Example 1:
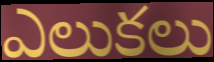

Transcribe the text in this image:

ఎలుకలు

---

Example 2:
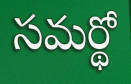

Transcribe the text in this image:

సమర్థో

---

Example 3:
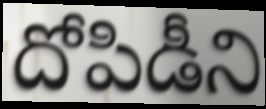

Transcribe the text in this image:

దోపిడీని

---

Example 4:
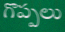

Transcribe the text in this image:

గొప్పలు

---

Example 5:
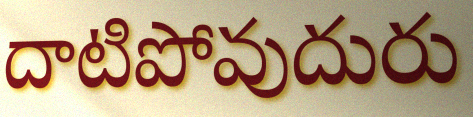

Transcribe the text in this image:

దాటిపోవుదురు